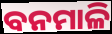
ବନମାଳି